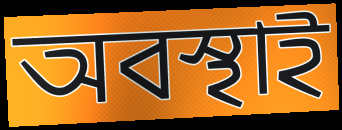
অবস্থাই